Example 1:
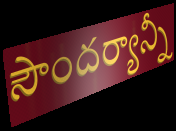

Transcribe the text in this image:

సౌందర్యాన్నీ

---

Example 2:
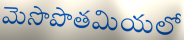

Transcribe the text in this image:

మెసొపొతమియలో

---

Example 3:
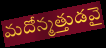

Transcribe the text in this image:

మదోన్మత్తుడవై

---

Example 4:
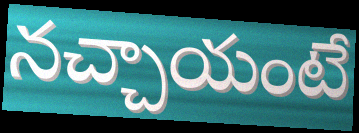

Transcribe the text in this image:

నచ్చాయంటే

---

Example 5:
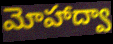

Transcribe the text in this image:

మోహాద్వా